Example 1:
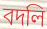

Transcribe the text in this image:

বদলি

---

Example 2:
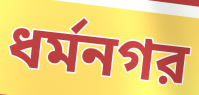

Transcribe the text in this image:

ধর্মনগর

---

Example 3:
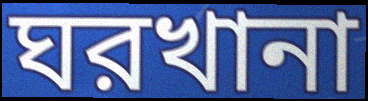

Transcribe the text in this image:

ঘরখানা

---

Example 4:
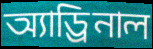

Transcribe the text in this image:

অ্যাড্রিনাল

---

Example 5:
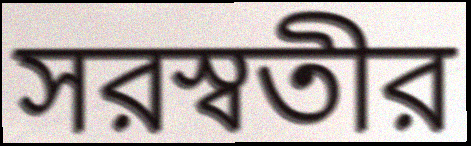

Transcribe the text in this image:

সরস্বতীর